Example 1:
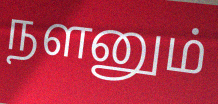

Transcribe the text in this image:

நளனும்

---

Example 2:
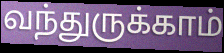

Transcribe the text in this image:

வந்துருக்காம்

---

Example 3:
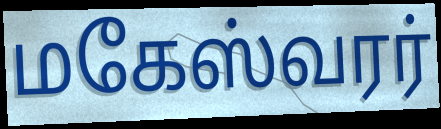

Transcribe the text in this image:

மகேஸ்வரர்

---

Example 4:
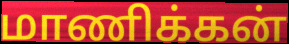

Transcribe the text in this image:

மாணிக்கன்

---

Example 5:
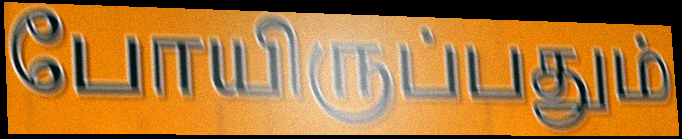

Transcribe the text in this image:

போயிருப்பதும்